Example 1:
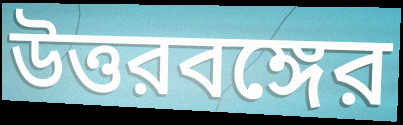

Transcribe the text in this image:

উত্তরবঙ্গের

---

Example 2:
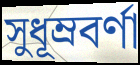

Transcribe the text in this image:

সুধূম্রবর্ণা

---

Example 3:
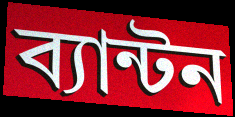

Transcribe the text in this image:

ব্যান্টন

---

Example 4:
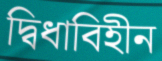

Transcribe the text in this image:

দ্বিধাবিহীন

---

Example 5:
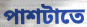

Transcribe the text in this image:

পাশটাতে